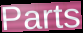
Parts